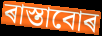
ৰাস্তাবোৰ